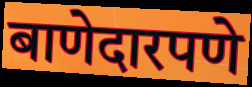
बाणेदारपणे